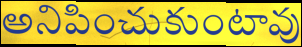
అనిపించుకుంటావు